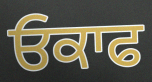
ਓਕਾਫ